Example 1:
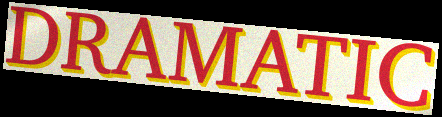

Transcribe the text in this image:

DRAMATIC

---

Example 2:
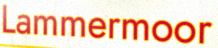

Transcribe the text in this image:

Lammermoor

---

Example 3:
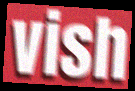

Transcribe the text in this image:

vish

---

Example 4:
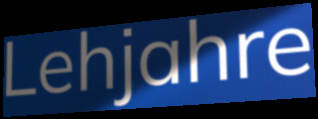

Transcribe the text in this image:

Lehjahre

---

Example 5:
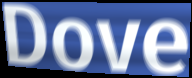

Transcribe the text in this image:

Dove